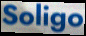
Soligo